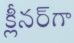
క్లీనర్‌గా